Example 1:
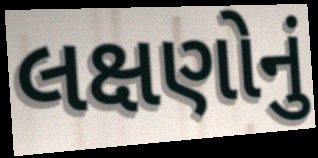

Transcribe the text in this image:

લક્ષણોનું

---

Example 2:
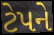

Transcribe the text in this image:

ટેપને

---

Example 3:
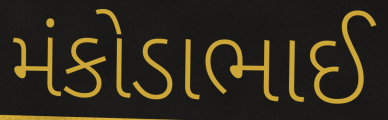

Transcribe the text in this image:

મંકોડાભાઈ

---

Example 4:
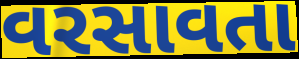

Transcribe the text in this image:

વરસાવતા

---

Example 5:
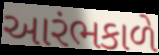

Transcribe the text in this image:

આરંભકાળે